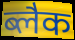
ब्लैक